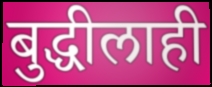
बुद्धीलाही